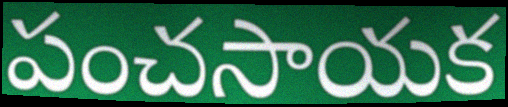
పంచసాయక